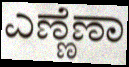
ಎಣ್ಣೆಣಾ